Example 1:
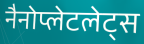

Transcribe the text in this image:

नैनोप्लेटलेट्स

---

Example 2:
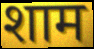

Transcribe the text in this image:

शाम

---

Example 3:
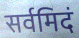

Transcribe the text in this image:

सर्वमिदं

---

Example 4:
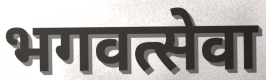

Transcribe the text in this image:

भगवत्सेवा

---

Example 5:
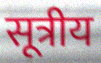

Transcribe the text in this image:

सूत्रीय